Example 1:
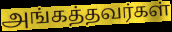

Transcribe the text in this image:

அங்கத்தவர்கள்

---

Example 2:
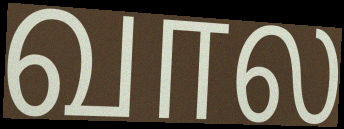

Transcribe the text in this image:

வால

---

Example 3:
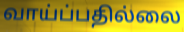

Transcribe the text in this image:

வாய்ப்பதில்லை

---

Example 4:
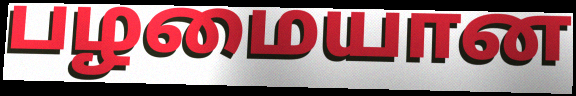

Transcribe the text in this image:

பழமையான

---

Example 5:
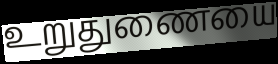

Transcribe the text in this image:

உறுதுணையை